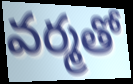
వర్మతో